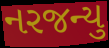
નરજન્યુ